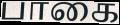
பாகை